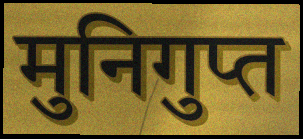
मुनिगुप्त